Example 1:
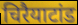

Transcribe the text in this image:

चिरैयाटांड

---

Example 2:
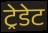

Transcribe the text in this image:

ट्रेडेट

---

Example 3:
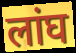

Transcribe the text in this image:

लांघ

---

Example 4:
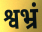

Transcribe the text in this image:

श्वभ्रं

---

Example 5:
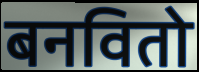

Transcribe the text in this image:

बनवितो